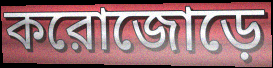
করোজোড়ে